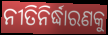
ନୀତିନିର୍ଦ୍ଧାରଣକୁ